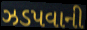
ઝડપવાની